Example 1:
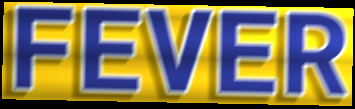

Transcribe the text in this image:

FEVER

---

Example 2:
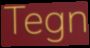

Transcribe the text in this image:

Tegn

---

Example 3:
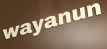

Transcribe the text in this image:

wayanun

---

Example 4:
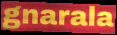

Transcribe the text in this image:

gnarala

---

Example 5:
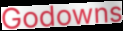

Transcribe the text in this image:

Godowns